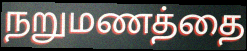
நறுமணத்தை